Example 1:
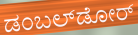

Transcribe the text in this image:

ಡಂಬಲ್‌ಡೋರ್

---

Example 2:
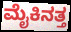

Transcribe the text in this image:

ಮೈಕಿನತ್ತ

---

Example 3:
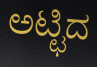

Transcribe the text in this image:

ಅಟ್ಟಿದ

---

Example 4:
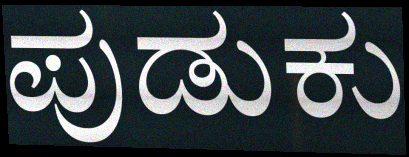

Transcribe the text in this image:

ಪುಡುಕು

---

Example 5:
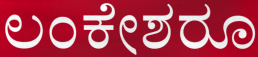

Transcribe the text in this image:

ಲಂಕೇಶರೂ